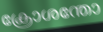
ക്രോശന്തോ